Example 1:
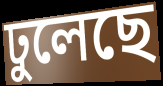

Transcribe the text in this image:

ঢুলেছে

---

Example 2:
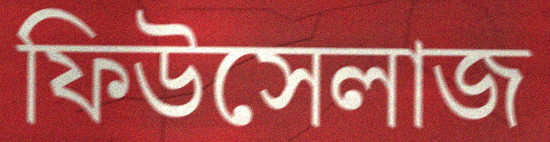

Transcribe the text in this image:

ফিউসেলাজ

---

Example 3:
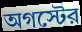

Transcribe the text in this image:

অগস্টের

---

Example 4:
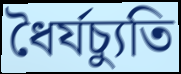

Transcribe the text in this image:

ধৈর্যচ্যুতি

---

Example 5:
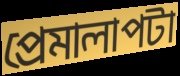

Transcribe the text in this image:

প্রেমালাপটা